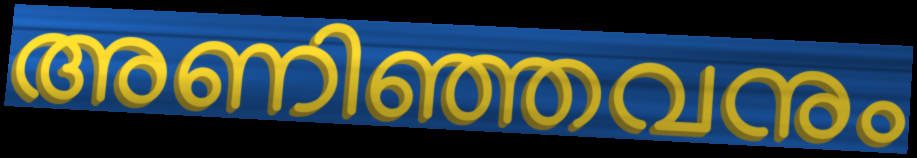
അണിഞ്ഞവനും